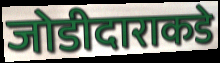
जोडीदाराकडे